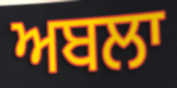
ਅਬਲਾ